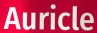
Auricle